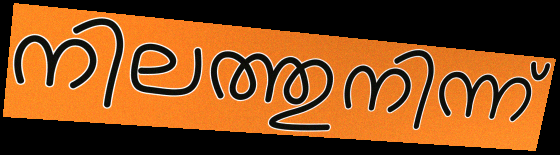
നിലത്തുനിന്ന്